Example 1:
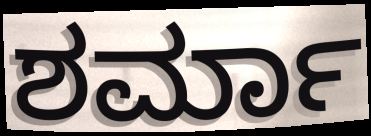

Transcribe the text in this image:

ಶರ್ಮಾ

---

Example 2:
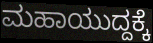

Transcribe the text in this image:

ಮಹಾಯುದ್ದಕ್ಕೆ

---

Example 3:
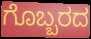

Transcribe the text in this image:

ಗೊಬ್ಬರದ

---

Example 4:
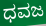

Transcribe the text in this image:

ಧವಜ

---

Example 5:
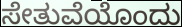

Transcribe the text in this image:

ಸೇತುವೆಯೊಂದು